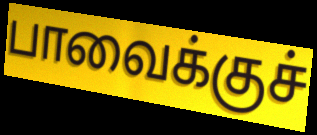
பாவைக்குச்